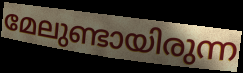
മേലുണ്ടായിരുന്ന